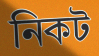
নিকট